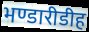
भण्डारीडीह